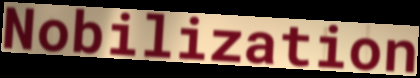
Nobilization